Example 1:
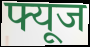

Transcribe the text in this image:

फ्यूज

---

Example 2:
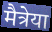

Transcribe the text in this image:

मैत्रेया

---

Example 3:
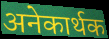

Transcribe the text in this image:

अनेकार्थक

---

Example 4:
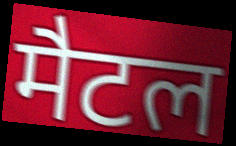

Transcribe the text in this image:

मैटल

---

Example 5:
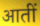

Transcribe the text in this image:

आतीं